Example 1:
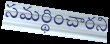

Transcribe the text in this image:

సమర్థించారని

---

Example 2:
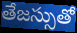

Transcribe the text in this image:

తేజస్సుతో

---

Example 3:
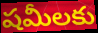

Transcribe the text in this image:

షమీలకు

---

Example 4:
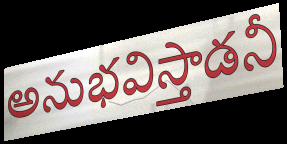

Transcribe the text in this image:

అనుభవిస్తాడనీ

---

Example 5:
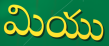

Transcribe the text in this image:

మియు